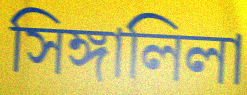
সিঙ্গালিলা